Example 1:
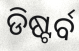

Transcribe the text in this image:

ଡିଷ୍ଟର୍ବ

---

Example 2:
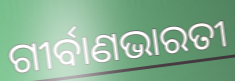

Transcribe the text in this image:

ଗୀର୍ବାଣଭାରତୀ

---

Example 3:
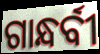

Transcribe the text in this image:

ଗାନ୍ଧର୍ବୀ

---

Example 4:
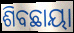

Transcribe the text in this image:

ଶିବଛାୟା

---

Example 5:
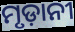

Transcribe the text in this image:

ମୃଡ଼ାନୀ